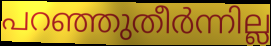
പറഞ്ഞുതീർന്നില്ല